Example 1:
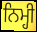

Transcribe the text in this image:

ਨਿਮ੍ਹੀ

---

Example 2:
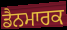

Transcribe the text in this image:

ਡੈਨਮਾਰਕ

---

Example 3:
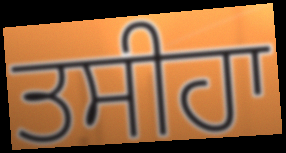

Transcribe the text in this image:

ਤਸੀਹਾ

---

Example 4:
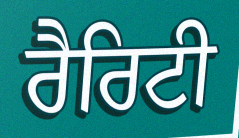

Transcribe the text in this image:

ਰੈਰਿਟੀ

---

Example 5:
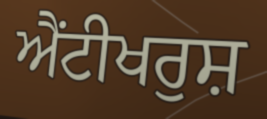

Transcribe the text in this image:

ਐਂਟੀਖਰੁਸ਼